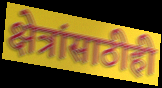
क्षेत्रांसाठीही